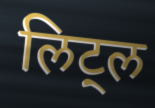
लिट्‌ल